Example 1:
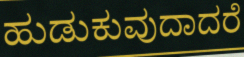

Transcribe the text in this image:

ಹುಡುಕುವುದಾದರೆ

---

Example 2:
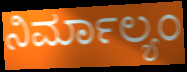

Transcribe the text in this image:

ನಿರ್ಮಾಲ್ಯಂ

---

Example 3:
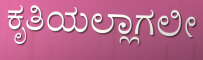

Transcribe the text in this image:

ಕೃತಿಯಲ್ಲಾಗಲೀ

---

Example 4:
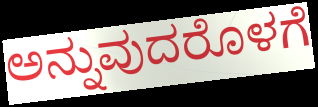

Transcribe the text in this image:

ಅನ್ನುವುದರೊಳಗೆ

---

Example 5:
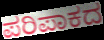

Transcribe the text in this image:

ಪರಿಪಾಕದ